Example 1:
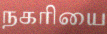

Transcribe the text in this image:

நகரியை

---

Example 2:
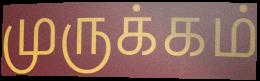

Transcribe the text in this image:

முருக்கம்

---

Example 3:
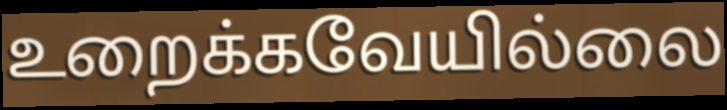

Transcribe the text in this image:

உறைக்கவேயில்லை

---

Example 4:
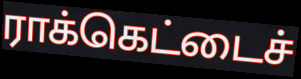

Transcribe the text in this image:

ராக்கெட்டைச்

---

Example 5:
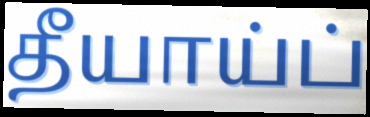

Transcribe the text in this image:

தீயாய்ப்